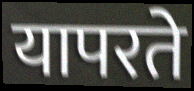
यापरते